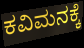
ಕವಿಮನಕ್ಕೆ